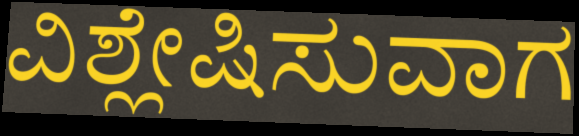
ವಿಶ್ಲೇಷಿಸುವಾಗ